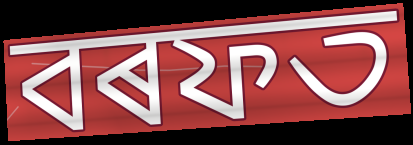
বৰফত